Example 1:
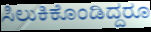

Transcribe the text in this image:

ಸಿಲುಕಿಕೊಂಡಿದ್ದರೂ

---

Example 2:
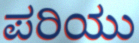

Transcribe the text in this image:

ಪರಿಯು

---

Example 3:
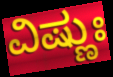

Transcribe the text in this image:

ವಿಷ್ಣುಃ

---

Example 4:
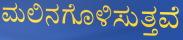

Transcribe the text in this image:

ಮಲಿನಗೊಳಿಸುತ್ತವೆ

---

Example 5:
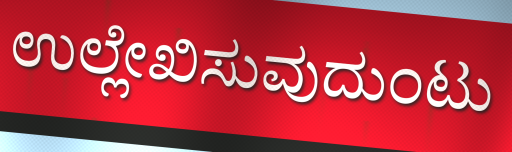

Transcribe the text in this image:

ಉಲ್ಲೇಖಿಸುವುದುಂಟು